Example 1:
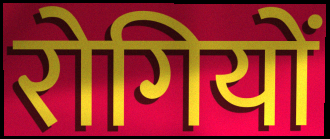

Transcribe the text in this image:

रोगियों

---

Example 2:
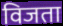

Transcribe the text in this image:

विजता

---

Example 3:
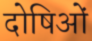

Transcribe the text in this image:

दोषिओं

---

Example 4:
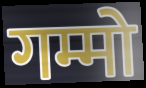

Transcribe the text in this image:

गम्मो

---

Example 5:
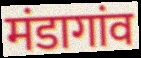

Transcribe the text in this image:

मंडागांव